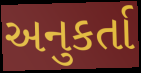
અનુકર્તા